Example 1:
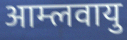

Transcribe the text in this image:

आम्लवायु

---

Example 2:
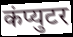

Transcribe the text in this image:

कंप्युटर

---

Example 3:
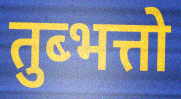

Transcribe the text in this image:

तुब्भत्तो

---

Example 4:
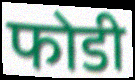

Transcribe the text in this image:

फोडी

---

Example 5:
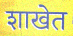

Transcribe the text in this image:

शाखेत